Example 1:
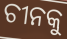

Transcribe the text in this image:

ଚୀନକୁ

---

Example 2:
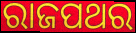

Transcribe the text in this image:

ରାଜପଥର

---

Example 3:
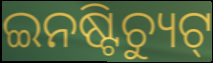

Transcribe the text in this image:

ଇନଷ୍ଟିଚ୍ୟୁଟ୍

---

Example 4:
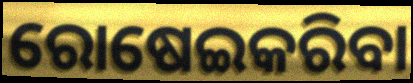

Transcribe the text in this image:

ରୋଷେଇକରିବା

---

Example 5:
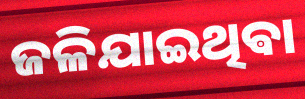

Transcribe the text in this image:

ଜଳିଯାଇଥିଵା